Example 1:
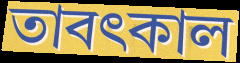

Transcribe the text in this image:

তাবৎকাল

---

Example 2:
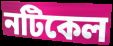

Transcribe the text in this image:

নটিকেল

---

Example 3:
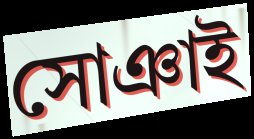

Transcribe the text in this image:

সোঞাই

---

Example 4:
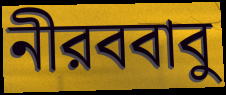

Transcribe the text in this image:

নীরববাবু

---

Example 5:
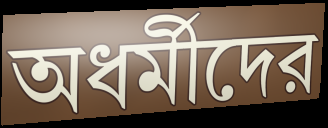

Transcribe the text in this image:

অধর্মীদের